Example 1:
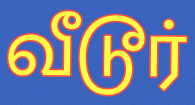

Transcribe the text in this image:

வீடூர்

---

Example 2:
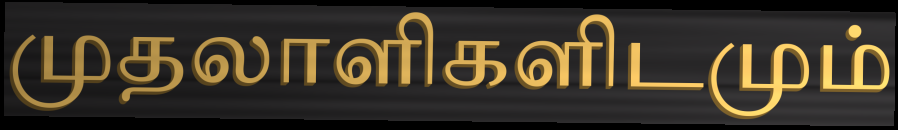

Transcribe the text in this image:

முதலாளிகளிடமும்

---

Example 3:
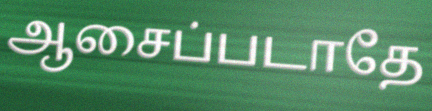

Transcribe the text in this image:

ஆசைப்படாதே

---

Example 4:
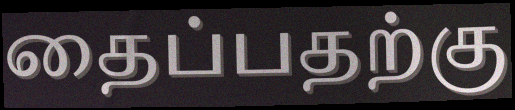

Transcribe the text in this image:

தைப்பதற்கு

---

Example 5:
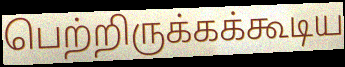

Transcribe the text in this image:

பெற்றிருக்கக்கூடிய